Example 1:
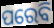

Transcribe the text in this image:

ପରେବି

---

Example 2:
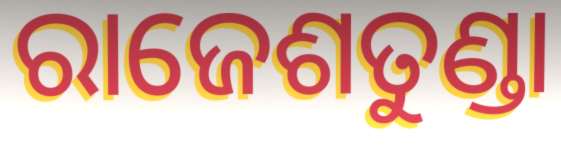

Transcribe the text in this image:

ରାଜେଶତୁଣ୍ଡା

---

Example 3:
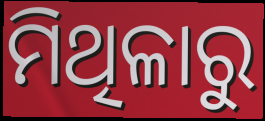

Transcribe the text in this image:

ମିଥିଳାରୁ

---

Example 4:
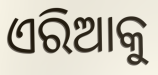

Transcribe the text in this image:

ଏରିଆକୁ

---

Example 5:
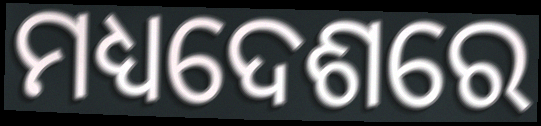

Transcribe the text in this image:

ମଧ୍ୟଦେଶରେ